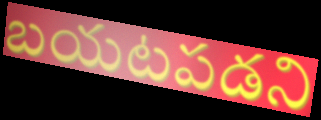
బయటపడని